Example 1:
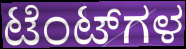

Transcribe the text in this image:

ಟೆಂಟ್‌ಗಳ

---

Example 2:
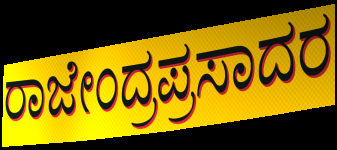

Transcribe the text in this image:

ರಾಜೇಂದ್ರಪ್ರಸಾದರ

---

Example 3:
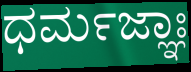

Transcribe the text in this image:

ಧರ್ಮಜ್ಞಾಃ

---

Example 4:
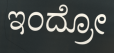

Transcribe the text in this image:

ಇಂದ್ರೋ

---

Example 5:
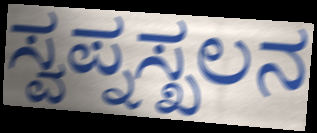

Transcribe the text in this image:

ಸ್ವಪ್ನಸ್ಖಲನ